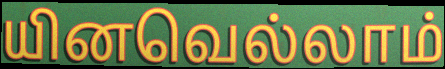
யினவெல்லாம்